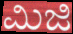
ಮಿಜಿ